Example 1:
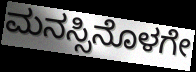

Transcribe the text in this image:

ಮನಸ್ಸಿನೊಳಗೇ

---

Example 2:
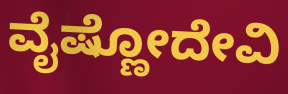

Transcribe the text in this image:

ವೈಷ್ಣೋದೇವಿ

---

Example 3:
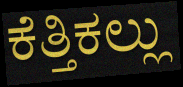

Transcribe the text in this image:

ಕೆತ್ತಿಕಲ್ಲು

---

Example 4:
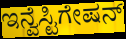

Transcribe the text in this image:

ಇನ್ವೆಸ್ಟಿಗೇಷನ್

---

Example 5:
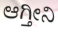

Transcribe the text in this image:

ಆಗ್ತೀನಿ